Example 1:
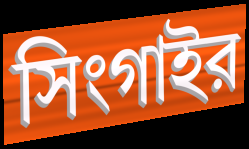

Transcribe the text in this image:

সিংগাইর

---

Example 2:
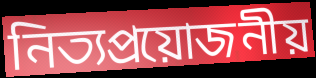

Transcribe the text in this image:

নিত্যপ্রয়োজনীয়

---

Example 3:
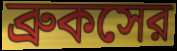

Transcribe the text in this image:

ব্রুকসের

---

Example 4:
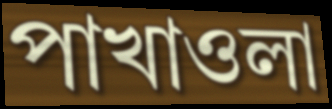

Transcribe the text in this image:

পাখাওলা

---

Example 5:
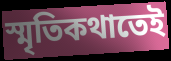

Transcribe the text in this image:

স্মৃতিকথাতেই